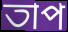
তাপ